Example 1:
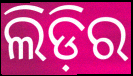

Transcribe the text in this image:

ଲିଡ଼ିର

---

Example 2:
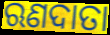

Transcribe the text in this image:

ଋଣଦାତା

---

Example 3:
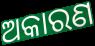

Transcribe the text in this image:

ଅକାରଣ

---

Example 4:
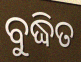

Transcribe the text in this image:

ବୁଦ୍ଧିତ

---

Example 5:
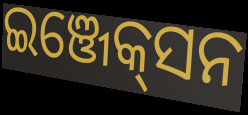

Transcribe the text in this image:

ଇଞ୍ଜେକ୍‌ସନ